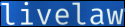
livelaw